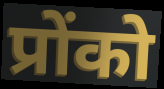
प्रोंको